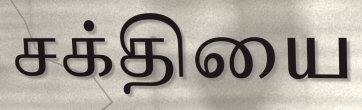
சக்தியை